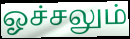
ஓச்சலும்